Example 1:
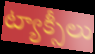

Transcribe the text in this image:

ట్యాక్సీలు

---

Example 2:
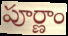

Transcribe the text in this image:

పూర్ణాం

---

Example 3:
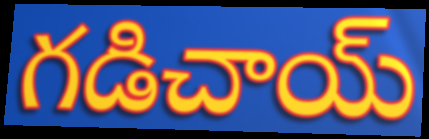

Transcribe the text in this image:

గడిచాయ్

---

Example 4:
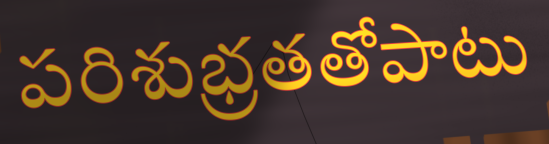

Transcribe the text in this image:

పరిశుభ్రతతోపాటు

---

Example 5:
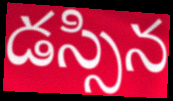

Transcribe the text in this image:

డస్సిన